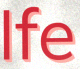
Ife